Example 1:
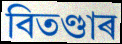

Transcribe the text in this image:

বিতণ্ডাৰ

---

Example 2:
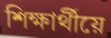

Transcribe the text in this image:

শিক্ষাৰ্থীয়ে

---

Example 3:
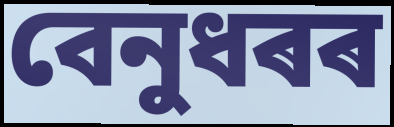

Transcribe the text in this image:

বেনুধৰৰ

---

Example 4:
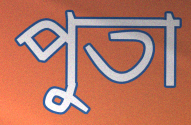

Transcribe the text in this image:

পুতা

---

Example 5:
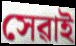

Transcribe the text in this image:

সেৱাই